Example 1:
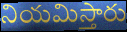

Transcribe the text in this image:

నియమిస్తారు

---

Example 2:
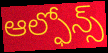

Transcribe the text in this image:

ఆల్ఫోన్స్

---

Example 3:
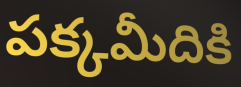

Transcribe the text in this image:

పక్కమీదికి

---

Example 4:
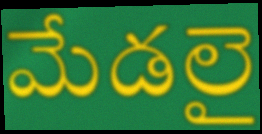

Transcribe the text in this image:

మేడలై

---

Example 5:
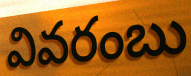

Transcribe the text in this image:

వివరంబు